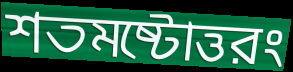
শতমষ্টোত্তরং